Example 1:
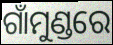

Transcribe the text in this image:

ଗାଁମୁଣ୍ଡରେ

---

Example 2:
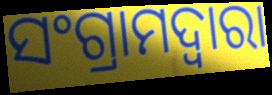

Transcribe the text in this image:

ସଂଗ୍ରାମଦ୍ଵାରା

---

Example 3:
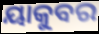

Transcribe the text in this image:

ୟାକୁବର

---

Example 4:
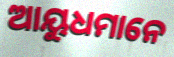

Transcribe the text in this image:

ଆୟୁଧମାନେ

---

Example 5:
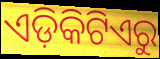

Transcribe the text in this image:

ଏଡ଼ିକିଟିଏରୁ